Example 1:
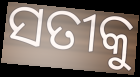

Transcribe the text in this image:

ସତୀକୁ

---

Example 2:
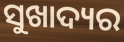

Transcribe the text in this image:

ସୁଖାଦ୍ୟର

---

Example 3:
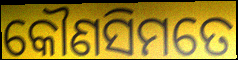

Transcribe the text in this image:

କୌଣସିମତେ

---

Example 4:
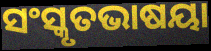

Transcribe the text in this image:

ସଂସ୍କୃତଭାଷୟା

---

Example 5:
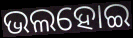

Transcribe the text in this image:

ଭଲହୋଇ